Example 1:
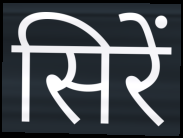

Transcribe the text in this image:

सिरें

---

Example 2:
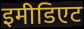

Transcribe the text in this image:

इमीडिएट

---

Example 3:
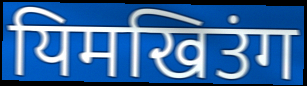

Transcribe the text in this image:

यिमखिउंग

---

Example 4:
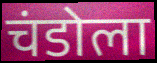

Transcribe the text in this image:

चंडोला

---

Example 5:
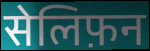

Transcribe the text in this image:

सेलिफ़न